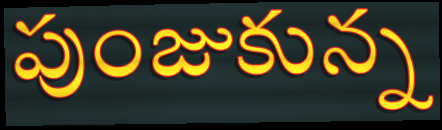
పుంజుకున్న